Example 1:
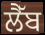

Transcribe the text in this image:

ਲੈੱਬ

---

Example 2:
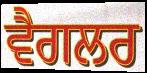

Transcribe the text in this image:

ਵੈਗਲਰ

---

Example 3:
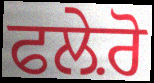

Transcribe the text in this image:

ਫਲ਼ੇਰੋ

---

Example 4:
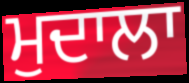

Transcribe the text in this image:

ਮੁਦਾਲਾ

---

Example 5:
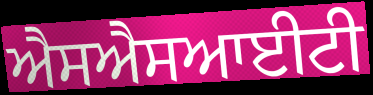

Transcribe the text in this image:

ਐਸਐਸਆਈਟੀ